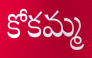
కోకమ్మ